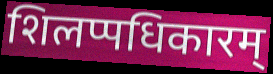
शिलप्पधिकारम्